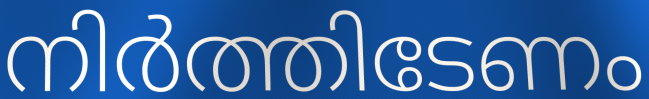
നിർത്തിടേണം